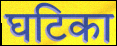
घटिका